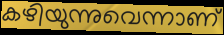
കഴിയുന്നുവെന്നാണ്